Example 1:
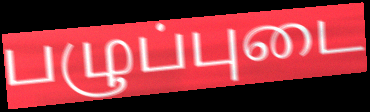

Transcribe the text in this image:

பழுப்புடை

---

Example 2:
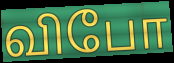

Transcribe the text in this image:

விபோ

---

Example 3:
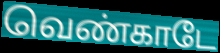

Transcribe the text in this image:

வெண்காடே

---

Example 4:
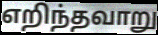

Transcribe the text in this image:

எறிந்தவாறு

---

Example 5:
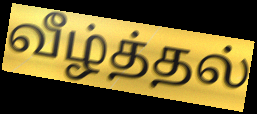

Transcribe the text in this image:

வீழ்த்தல்